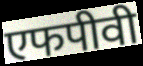
एफपीवी